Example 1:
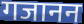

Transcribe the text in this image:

गजानन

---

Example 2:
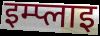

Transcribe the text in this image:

इम्प्लाइ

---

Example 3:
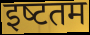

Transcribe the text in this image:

इष्‍टतम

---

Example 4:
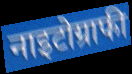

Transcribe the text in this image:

नाइटोग्राफी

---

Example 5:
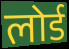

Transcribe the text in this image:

लोर्ड